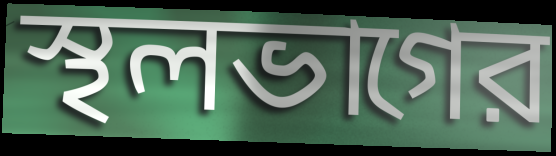
স্থলভাগের